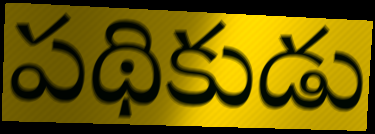
పథికుడు